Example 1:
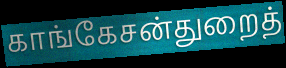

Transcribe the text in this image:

காங்கேசன்துறைத்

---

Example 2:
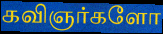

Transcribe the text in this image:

கவிஞர்களோ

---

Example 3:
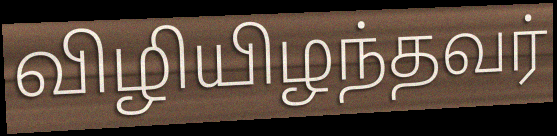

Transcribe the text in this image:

விழியிழந்தவர்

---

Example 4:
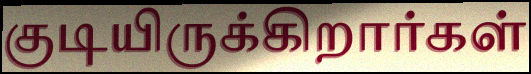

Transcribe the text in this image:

குடியிருக்கிறார்கள்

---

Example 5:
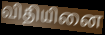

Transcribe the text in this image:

விதியினை